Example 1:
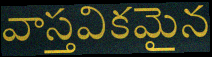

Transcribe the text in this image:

వాస్తవికమైన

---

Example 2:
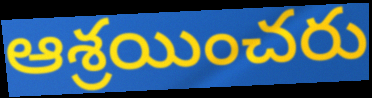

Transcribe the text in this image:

ఆశ్రయించరు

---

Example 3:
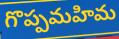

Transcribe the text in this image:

గొప్పమహిమ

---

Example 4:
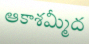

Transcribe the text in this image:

ఆకాశమ్మీద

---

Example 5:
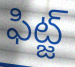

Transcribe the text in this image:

ఫిట్జ్